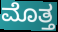
ಮೊತ್ತ